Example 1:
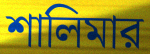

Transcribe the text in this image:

শালিমার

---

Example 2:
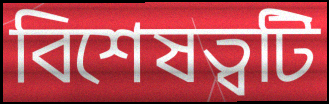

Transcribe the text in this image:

বিশেষত্বটি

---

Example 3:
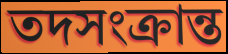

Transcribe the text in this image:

তদসংক্রান্ত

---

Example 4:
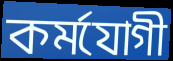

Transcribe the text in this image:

কর্মযোগী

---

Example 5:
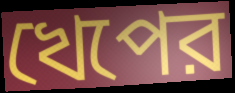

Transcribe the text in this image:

খেপের